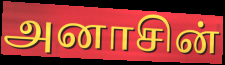
அனாசின்